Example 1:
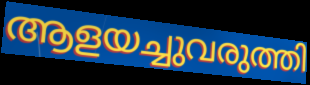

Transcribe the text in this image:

ആളയച്ചുവരുത്തി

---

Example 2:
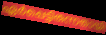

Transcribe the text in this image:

ഏർപ്പെട്ടിരുന്നതായി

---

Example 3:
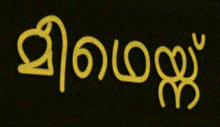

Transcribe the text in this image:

മീഥെയ്ന്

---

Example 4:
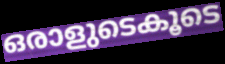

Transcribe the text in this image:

ഒരാളുടെകൂടെ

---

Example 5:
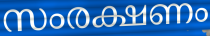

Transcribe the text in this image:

സംരക്ഷണം